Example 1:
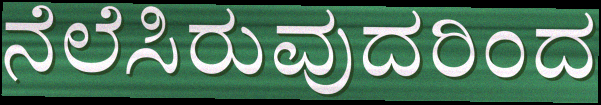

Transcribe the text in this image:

ನೆಲೆಸಿರುವುದರಿಂದ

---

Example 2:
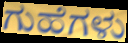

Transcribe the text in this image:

ಗುಹೆಗಳು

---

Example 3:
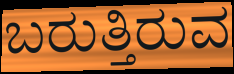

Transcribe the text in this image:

ಬರುತ್ತಿರುವ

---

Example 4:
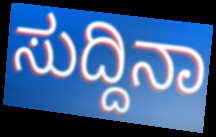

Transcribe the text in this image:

ಸುದ್ದಿನಾ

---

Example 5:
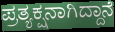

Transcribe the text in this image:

ಪ್ರತ್ಯಕ್ಷನಾಗಿದ್ದಾನೆ